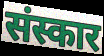
संस्कार